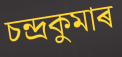
চন্দ্ৰকুমাৰ